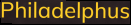
Philadelphus